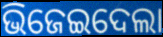
ଭିଜେଇଦେଲା